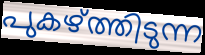
പുകഴ്ത്തിടുന്ന